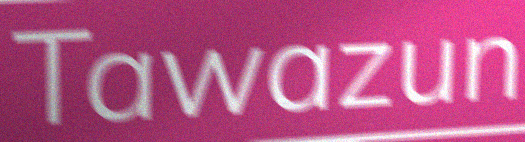
Tawazun